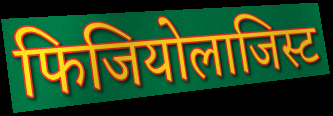
फिजियोलाजिस्ट